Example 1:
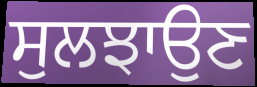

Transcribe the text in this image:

ਸੁਲਝਾਉਣ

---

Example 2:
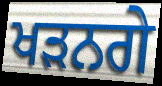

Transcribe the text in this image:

ਖੜਨਗੇ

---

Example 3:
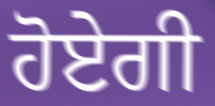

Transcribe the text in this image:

ਹੋਏਗੀ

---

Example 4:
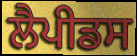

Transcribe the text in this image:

ਲੈਪੀਡਸ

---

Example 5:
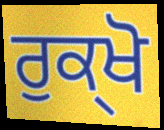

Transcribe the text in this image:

ਰੁਕ੍ਖੋ